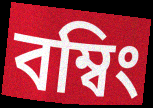
বম্বিং